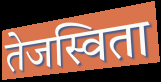
तेजस्विता